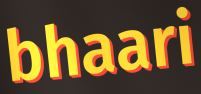
bhaari